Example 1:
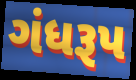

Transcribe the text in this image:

ગંધરૂપ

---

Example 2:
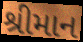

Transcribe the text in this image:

શ્રીમાન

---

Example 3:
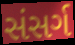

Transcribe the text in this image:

સંસર્ગ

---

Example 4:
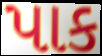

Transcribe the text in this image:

પાક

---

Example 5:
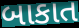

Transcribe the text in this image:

બાકાત